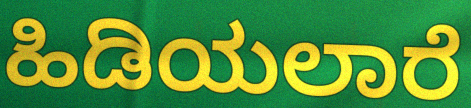
ಹಿಡಿಯಲಾರೆ